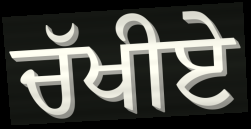
ਚੱਖੀਏ